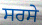
ਸਰਸੇ